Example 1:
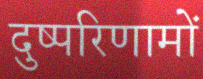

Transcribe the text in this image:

दुष्परिणामों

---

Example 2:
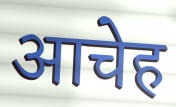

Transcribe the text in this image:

आचेह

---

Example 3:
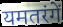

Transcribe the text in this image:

यमतरंगें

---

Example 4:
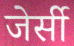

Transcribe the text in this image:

जेर्सी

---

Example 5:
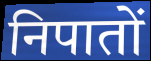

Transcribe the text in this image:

निपातों